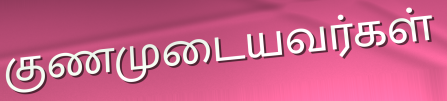
குணமுடையவர்கள்